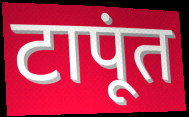
टापूंत